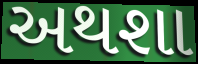
અથશા